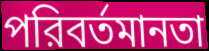
পরিবর্তমানতা